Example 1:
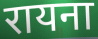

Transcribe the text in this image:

रायना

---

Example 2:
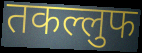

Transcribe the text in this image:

तकल्लुफ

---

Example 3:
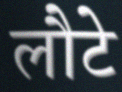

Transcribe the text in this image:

लौटे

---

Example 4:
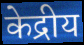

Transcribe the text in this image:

केद्रीय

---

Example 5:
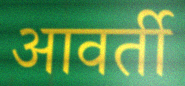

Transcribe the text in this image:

आवर्ती